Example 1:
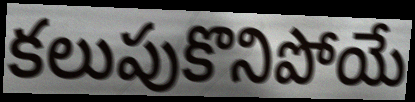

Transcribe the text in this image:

కలుపుకొనిపోయే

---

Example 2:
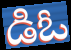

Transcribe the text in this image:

డిఓ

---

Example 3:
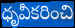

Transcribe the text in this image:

ధృవీకరించి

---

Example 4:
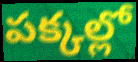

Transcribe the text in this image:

పక్కల్లో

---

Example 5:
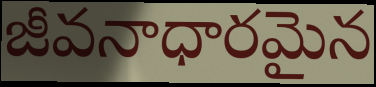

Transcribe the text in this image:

జీవనాధారమైన